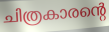
ചിത്രകാരന്റെ